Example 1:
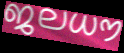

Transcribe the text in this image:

ജലധൗ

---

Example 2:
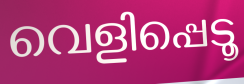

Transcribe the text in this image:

വെളിപ്പെടൂ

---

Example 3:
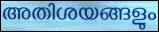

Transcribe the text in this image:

അതിശയങ്ങളും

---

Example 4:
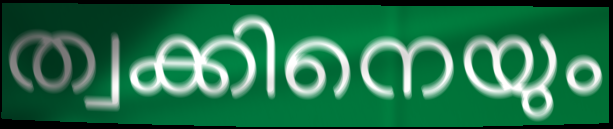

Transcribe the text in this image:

ത്വക്കിനെയും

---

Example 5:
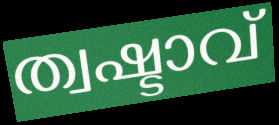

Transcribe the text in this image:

ത്വഷ്ടാവ്